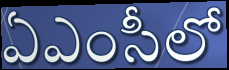
ఏఎంసీలో